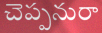
చెప్పనురా